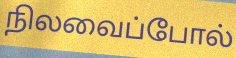
நிலவைப்போல்